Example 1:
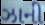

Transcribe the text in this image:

ઝાની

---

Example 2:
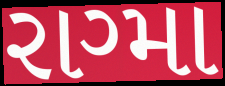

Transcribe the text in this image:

રાગ્મા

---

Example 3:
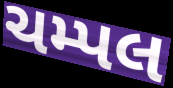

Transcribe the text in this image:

ચમ્પલ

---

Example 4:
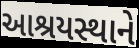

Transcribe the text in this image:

આશ્રયસ્થાને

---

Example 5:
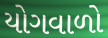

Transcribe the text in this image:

યોગવાળો